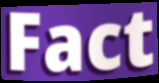
Fact